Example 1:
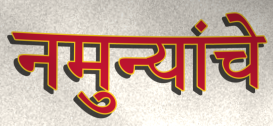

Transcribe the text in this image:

नमुन्यांचे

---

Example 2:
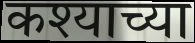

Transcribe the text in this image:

कश्याच्या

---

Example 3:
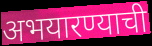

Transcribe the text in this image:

अभयारण्याची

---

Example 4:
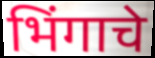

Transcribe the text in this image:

भिंगाचे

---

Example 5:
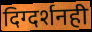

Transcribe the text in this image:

दिग्दर्शनही